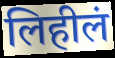
लिहीलं